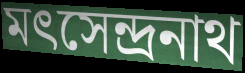
মৎসেন্দ্রনাথ